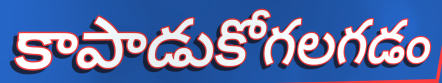
కాపాడుకోగలగడం